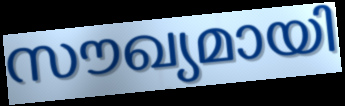
സൗഖ്യമായി